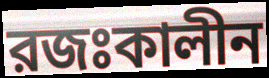
রজঃকালীন